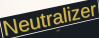
Neutralizer